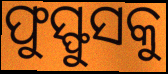
ଫୁସ୍ଫୁସକୁ